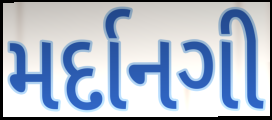
મર્દાનગી